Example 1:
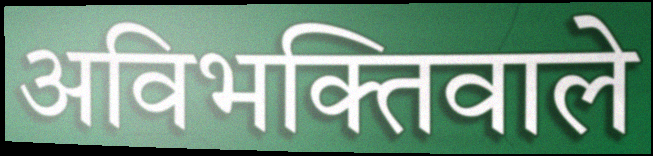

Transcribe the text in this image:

अविभक्तिवाले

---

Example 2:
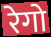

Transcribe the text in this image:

रेगो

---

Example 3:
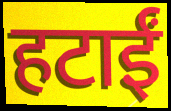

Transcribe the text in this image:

हटाईं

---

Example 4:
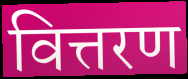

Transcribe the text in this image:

वित्तरण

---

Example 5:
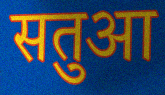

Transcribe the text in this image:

सतुआ